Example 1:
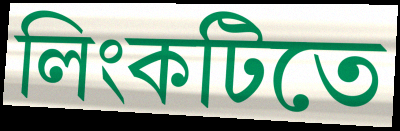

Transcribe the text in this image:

লিংকটিতে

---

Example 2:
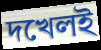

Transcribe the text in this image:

দখেলই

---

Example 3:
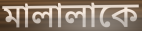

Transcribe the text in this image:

মালালাকে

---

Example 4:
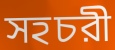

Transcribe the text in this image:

সহচরী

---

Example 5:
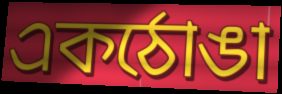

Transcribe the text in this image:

একঠোঙা